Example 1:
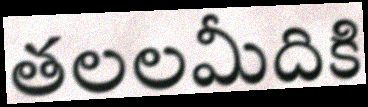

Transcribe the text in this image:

తలలమీదికి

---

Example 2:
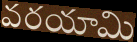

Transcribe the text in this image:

వరయామి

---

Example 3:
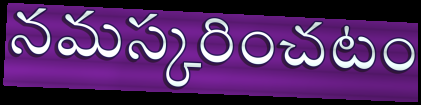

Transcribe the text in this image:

నమస్కరించటం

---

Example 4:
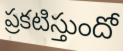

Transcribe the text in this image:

ప్రకటిస్తుందో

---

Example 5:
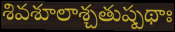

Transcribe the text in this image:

శివశూలాశ్చతుష్పథాః